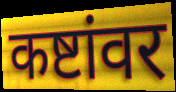
कष्टांवर